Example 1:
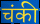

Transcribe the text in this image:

चंकी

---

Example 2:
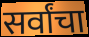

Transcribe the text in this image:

सर्वांचा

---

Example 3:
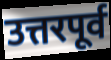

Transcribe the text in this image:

उत्तरपूर्व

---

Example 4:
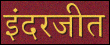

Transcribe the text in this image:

इंदरजीत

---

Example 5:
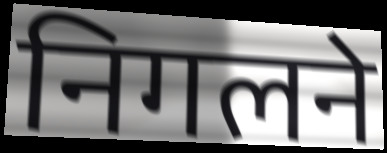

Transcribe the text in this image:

निगलने